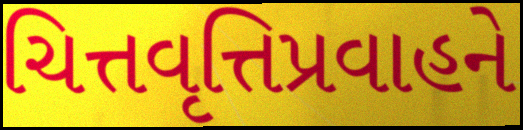
ચિત્તવૃત્તિપ્રવાહને